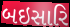
બઇસારિ